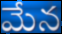
మేన